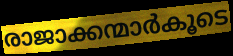
രാജാക്കന്മാർകൂടെ